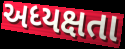
અધ્યક્ષતા